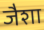
जैशा